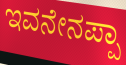
ಇವನೇನಪ್ಪಾ